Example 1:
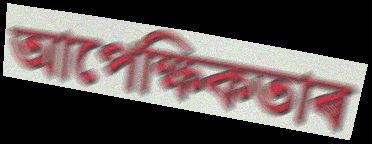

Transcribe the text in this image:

আপেক্ষিকতাৰ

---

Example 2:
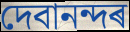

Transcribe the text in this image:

দেবানন্দৰ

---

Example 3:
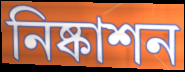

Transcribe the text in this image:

নিষ্কাশন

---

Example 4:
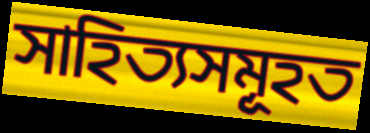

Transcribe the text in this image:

সাহিত্যসমূহত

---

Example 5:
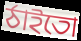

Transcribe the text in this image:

ঠাইতো